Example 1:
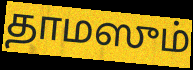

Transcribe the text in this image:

தாமஸும்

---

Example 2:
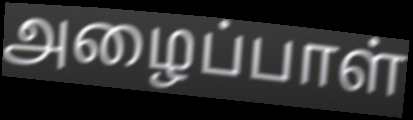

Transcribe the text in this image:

அழைப்பாள்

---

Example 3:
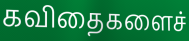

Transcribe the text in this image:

கவிதைகளைச்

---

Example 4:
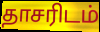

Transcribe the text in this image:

தாசரிடம்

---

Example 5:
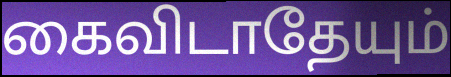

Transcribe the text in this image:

கைவிடாதேயும்